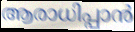
ആരാധിപ്പാൻ